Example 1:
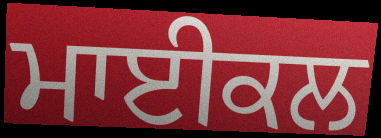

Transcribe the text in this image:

ਮਾਈਕਲ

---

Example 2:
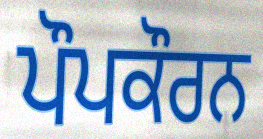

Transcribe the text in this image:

ਪੌਪਕੌਰਨ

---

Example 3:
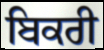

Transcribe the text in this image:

ਬਿਕਰੀ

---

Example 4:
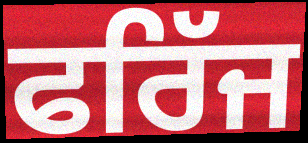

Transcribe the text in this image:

ਫਰਿੱਜ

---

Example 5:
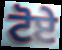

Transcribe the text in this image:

ਟੋਏ